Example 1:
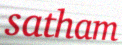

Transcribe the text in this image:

satham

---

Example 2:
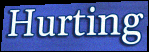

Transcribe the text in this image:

Hurting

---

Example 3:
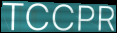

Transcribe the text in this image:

TCCPR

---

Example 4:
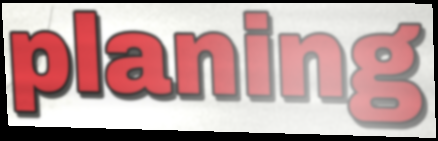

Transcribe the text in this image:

planing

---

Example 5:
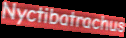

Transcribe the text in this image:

Nyctibatrachus